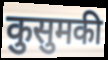
कुसुमकी